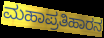
ಮಹಾಪ್ರತಿಹಾರನ